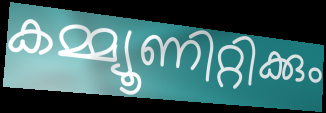
കമ്മ്യൂണിറ്റിക്കും